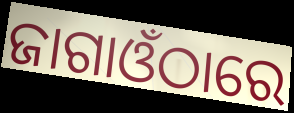
ଜାଗାଓଁଠାରେ